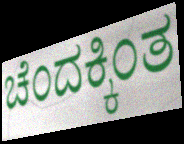
ಚೆಂದಕ್ಕಿಂತ